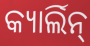
କ୍ୟାର୍ଲିନ୍